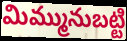
మిమ్మునుబట్టి